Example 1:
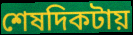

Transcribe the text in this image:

শেষদিকটায়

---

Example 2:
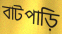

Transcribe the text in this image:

বাটপাড়ি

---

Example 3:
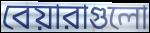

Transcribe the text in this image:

বেয়ারাগুলো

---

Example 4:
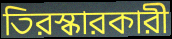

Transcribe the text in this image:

তিরস্কারকারী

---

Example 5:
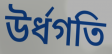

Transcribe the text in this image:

উর্ধগতি